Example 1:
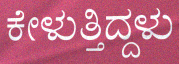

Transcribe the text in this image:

ಕೇಳುತ್ತಿದ್ದಳು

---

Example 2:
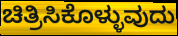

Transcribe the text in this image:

ಚಿತ್ರಿಸಿಕೊಳ್ಳುವುದು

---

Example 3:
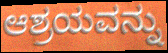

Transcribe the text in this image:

ಆಶ್ರಯವನ್ನು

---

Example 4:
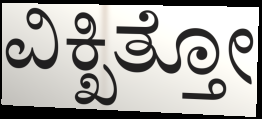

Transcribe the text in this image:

ವಿಕ್ಖಿತ್ತೋ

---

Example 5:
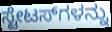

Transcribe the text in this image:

ಸ್ಟೇಟಸ್‌ಗಳನ್ನು